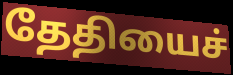
தேதியைச்